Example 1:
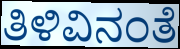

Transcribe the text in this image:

ತಿಳಿವಿನಂತೆ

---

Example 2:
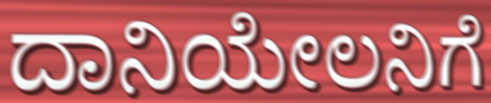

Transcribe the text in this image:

ದಾನಿಯೇಲನಿಗೆ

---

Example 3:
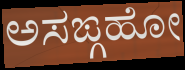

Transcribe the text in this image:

ಅಸಙ್ಗಹೋ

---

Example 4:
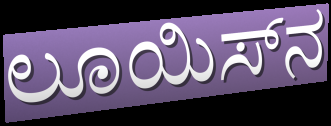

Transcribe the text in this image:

ಲೂಯಿಸ್‌ನ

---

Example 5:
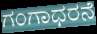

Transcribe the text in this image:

ಗಂಗಾಧರನೆ